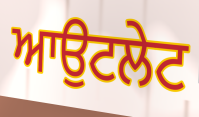
ਆਉਟਲੇਟ